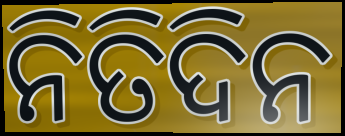
ନିତିଦିନ